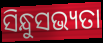
ସିନ୍ଧୁସଭ୍ୟତା